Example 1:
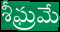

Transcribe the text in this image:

శీఘ్రమే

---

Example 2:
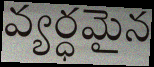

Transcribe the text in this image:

వ్యర్ధమైన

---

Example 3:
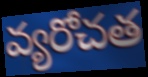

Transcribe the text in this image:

వ్యరోచత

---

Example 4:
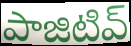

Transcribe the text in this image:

పాజిటివ్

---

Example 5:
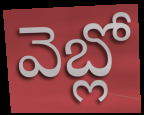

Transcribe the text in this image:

వెబ్లో